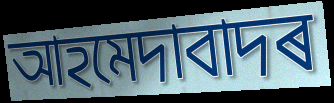
আহমেদাবাদৰ